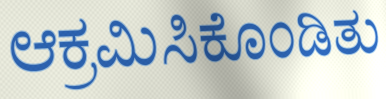
ಆಕ್ರಮಿಸಿಕೊಂಡಿತು